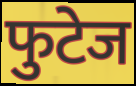
फुटेज